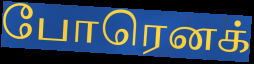
போரெனக்